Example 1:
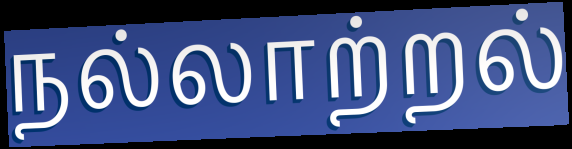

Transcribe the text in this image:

நல்லாற்றல்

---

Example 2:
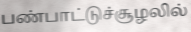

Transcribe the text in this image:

பண்பாட்டுச்சூழலில்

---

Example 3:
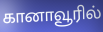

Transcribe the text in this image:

கானாவூரில்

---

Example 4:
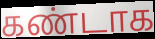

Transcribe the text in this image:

கண்டாக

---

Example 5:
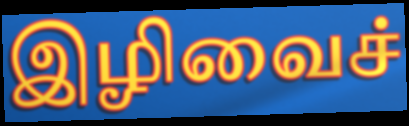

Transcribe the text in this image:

இழிவைச்